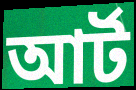
আর্ট